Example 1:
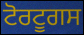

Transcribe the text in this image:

ਟੋਰਟੂਗਸ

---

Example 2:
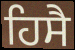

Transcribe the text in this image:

ਹਿਸੈ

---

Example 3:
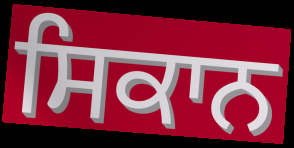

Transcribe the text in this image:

ਸਿਕਾਨ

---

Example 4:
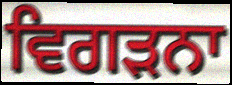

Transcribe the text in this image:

ਵਿਗੜਨਾ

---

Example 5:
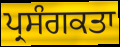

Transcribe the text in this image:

ਪ੍ਰਸੰਗਕਤਾ